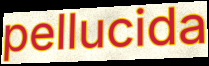
pellucida